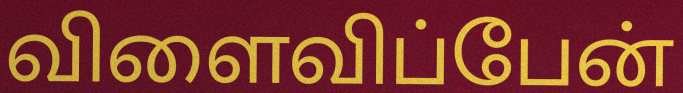
விளைவிப்பேன்